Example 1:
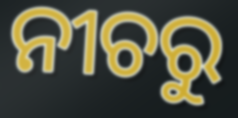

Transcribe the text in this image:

ନୀଚରୁ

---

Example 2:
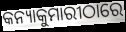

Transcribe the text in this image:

କନ୍ୟାକୁମାରୀଠାରେ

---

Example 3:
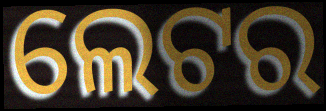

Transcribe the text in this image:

ଲେଟର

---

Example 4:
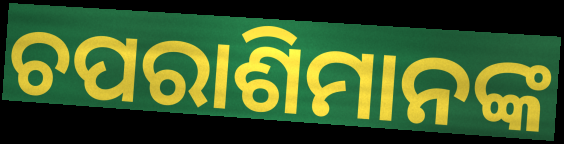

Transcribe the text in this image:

ଚପରାଶିମାନଙ୍କ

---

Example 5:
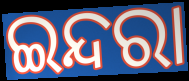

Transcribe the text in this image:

ଇନ୍ଦରା